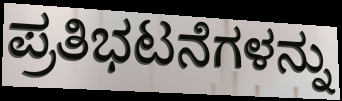
ಪ್ರತಿಭಟನೆಗಳನ್ನು